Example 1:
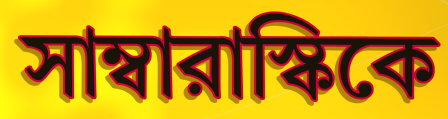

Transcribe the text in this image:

সাম্বারাস্কিকে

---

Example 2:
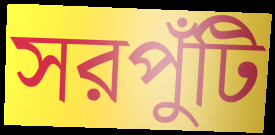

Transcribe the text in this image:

সরপুঁটি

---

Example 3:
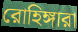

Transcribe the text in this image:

রোহিঙ্গারা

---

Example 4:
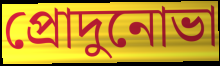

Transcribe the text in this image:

প্রোদুনোভা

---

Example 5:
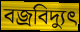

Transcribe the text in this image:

বজ্রবিদ্যুৎ